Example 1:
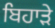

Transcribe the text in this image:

ਬਿਹਾੜੇ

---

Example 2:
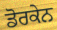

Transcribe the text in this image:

ਡੋਰਕੇਨ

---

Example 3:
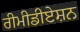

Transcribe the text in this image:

ਰੀਮੀਡੀਏਸ਼ਨ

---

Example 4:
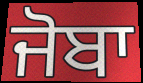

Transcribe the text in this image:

ਜੋਬਾ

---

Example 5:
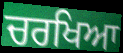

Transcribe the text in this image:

ਚਰਖਿਆ